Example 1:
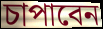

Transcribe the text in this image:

চাপাবেন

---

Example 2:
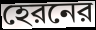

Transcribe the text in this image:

হেরনের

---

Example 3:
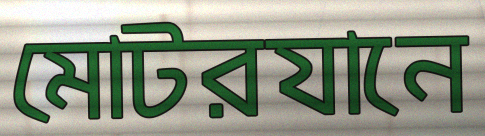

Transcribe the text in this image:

মোটরযানে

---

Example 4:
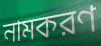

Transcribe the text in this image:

নামকরণ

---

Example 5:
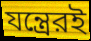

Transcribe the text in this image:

যন্ত্রেরই